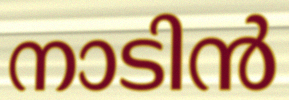
നാടിൻ